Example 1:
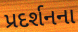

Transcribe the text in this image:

પ્રદર્શનના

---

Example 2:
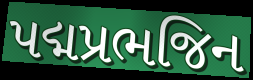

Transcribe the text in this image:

પદ્મપ્રભજિન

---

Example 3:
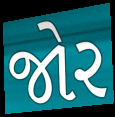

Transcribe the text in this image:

જોર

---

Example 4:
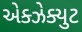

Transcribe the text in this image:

એક્ઝેક્યુટ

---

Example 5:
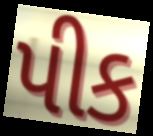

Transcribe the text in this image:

પીક